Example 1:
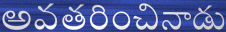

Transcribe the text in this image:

అవతరించినాడు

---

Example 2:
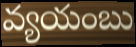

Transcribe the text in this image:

వ్యయంబు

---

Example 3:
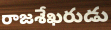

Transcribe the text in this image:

రాజశేఖరుడు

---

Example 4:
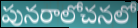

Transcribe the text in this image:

పునరాలోచనలో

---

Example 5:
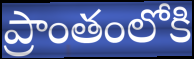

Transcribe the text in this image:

ప్రాంతంలోకి